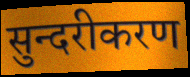
सुन्दरीकरण